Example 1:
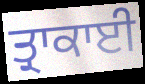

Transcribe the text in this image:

ਤ੍ਰਾਕਾਈ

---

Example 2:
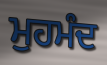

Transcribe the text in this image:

ਮੁਹਮੰਦ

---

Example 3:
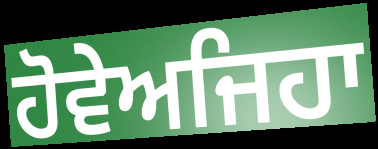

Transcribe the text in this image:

ਹੋਵੇਅਜਿਹਾ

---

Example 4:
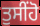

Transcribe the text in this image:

ਤੁਸੀਂਹੋ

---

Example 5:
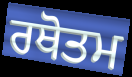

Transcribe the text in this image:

ਰਥੋਤਮ